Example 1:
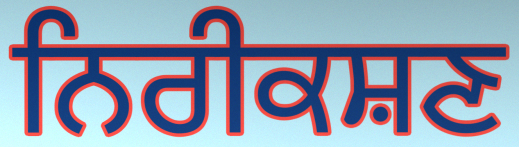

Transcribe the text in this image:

ਨਿਰੀਕਸ਼ਣ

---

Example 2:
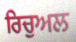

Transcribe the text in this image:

ਰਿਚੁਅਲ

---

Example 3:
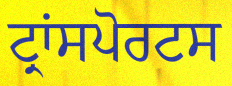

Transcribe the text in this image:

ਟ੍ਰਾਂਸਪੋਰਟਸ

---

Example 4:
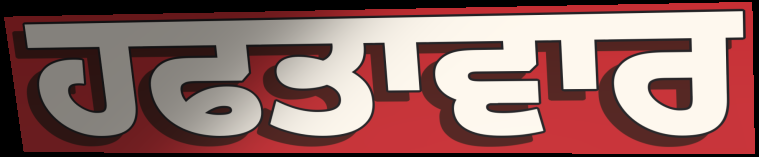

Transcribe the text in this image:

ਹਫਤਾਵਾਰ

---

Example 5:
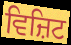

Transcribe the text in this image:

ਵਿਜ਼ਿਟ